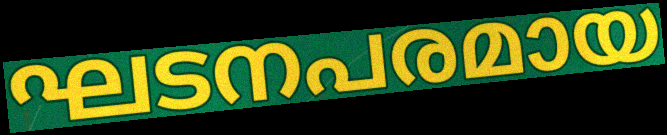
ഘടനപരമായ